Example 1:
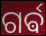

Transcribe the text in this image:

ଗର୍ଵ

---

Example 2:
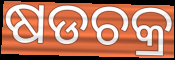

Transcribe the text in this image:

ଷଡଚକ୍ର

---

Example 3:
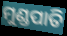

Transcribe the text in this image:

ମୁଣ୍ଡପାତି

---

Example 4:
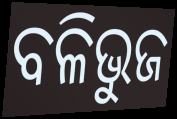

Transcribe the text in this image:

ବଳିଭୁଜ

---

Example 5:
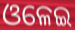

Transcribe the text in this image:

ଓଳେଇ